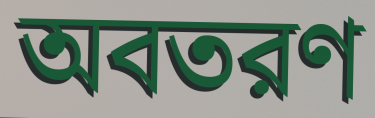
অবতরণ